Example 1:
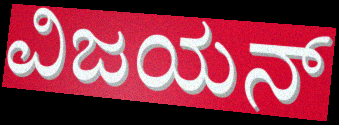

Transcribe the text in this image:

ವಿಜಯನ್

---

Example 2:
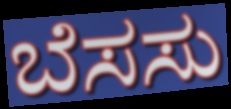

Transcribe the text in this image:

ಬೆಸಸು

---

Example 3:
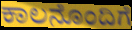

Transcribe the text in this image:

ಕಾಲನೊಂದಿಗೆ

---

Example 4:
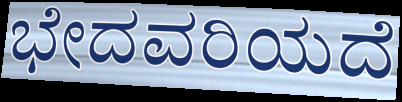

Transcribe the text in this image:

ಭೇದವರಿಯದೆ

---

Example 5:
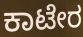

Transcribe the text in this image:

ಕಾಟೇರ